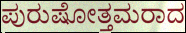
ಪುರುಷೋತ್ತಮರಾದ